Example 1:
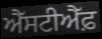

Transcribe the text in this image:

ਐੱਸਟੀਐੱਫ਼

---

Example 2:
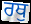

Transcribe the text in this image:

ਰਥੁ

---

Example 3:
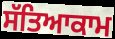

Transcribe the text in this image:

ਸੱਤਿਆਕਾਮ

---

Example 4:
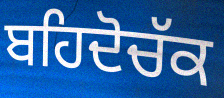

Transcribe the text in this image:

ਬਹਿਦੋਚੱਕ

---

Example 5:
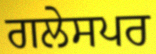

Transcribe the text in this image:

ਗਲੇਸਪਰ